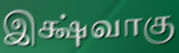
இக்ஷ்வாகு